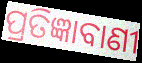
ପ୍ରତିଜ୍ଞାବାଣୀ